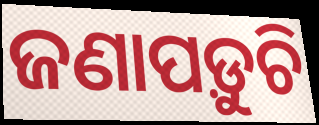
ଜଣାପଡ଼ୁଚି